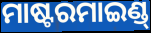
ମାଷ୍ଟରମାଇଣ୍ଡ୍